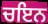
ਚਇਨ